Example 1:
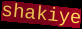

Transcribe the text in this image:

shakiye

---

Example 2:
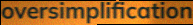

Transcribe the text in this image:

oversimplification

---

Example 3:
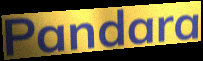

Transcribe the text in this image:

Pandara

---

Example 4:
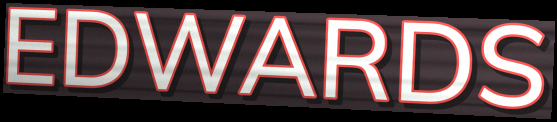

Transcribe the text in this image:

EDWARDS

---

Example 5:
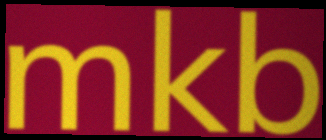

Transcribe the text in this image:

mkb